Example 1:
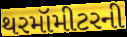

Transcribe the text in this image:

થરમૉમીટરની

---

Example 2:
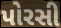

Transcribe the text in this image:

પોરસી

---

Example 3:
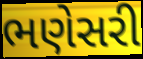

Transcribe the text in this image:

ભણેસરી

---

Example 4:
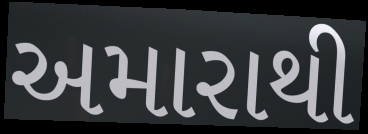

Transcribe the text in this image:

અમારાથી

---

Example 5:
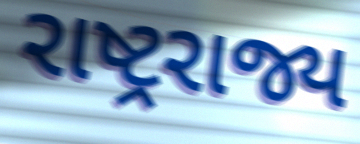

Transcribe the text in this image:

રાષ્ટ્રરાજ્ય